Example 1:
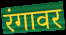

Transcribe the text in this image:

रंगावर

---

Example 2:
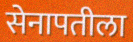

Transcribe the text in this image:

सेनापतीला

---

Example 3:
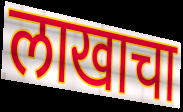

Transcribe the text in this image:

लाखाचा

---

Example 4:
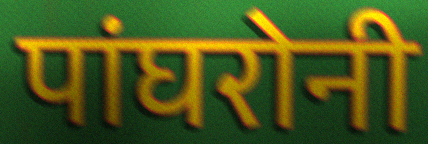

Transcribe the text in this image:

पांघरोनी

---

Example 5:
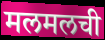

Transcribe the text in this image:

मलमलची